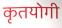
कृतयोगी